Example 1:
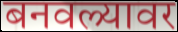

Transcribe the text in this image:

बनवल्यावर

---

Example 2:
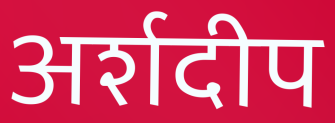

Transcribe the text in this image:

अर्शदीप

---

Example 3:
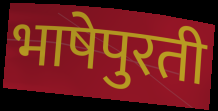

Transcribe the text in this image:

भाषेपुरती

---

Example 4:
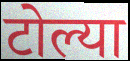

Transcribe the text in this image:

टोल्या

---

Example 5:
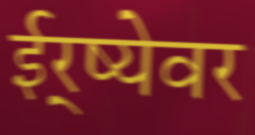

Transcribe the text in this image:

ईर्ष्येवर